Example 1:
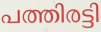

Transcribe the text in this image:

പത്തിരട്ടി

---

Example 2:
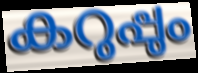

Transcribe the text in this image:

കറുപ്പും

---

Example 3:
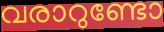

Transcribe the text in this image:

വരാറുണ്ടോ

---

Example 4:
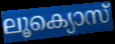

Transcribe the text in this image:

ലൂക്യൊസ്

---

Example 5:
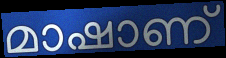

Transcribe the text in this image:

മാഷാണ്